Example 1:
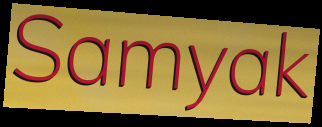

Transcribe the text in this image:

Samyak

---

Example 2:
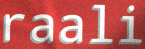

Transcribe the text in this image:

raali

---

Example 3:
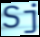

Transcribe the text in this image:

Sj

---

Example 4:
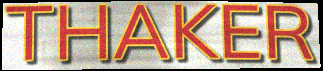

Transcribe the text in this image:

THAKER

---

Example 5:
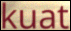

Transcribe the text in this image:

kuat